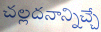
చల్లదనాన్నిచ్చే